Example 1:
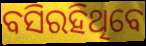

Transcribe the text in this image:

ବସିରହିଥିବେ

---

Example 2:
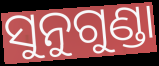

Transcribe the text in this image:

ସୁନୁଗୁଣ୍ଡା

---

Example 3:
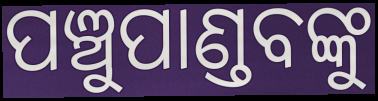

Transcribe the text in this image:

ପଞ୍ଚୁପାଣ୍ଡବଙ୍କୁ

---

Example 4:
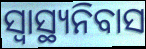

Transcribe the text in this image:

ସ୍ୱାସ୍ଥ୍ୟନିବାସ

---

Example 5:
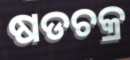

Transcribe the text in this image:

ଷଡଚକ୍ର